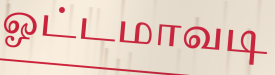
ஓட்டமாவடி